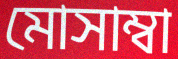
মোসাম্বা